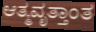
ಆತ್ಮವೃತ್ತಾಂತ